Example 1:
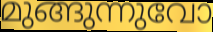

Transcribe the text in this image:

മുങ്ങുന്നുവോ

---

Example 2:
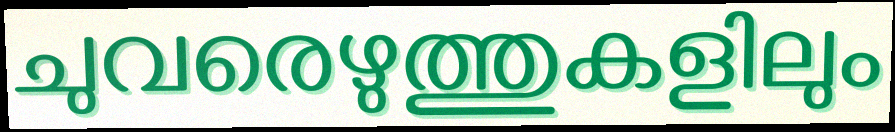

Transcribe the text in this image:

ചുവരെഴുത്തുകളിലും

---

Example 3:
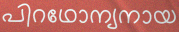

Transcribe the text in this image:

പിറഥോന്യനായ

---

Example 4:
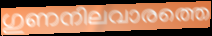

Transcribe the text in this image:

ഗുണനിലവാരത്തെ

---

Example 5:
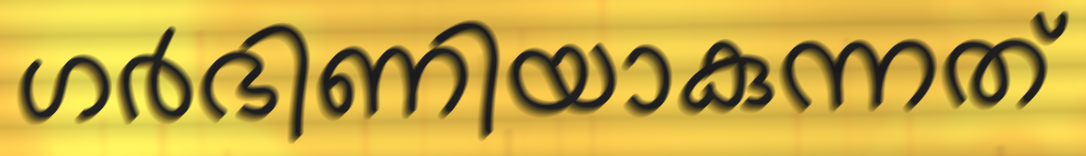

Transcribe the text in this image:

ഗർഭിണിയാകുന്നത്